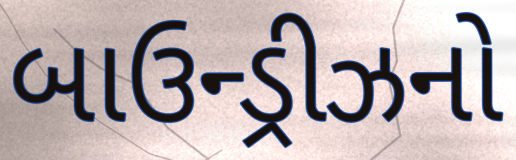
બાઉન્ડ્રીઝનો